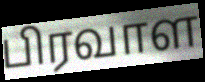
பிரவாள